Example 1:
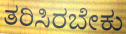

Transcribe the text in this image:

ತರಿಸಿರಬೇಕು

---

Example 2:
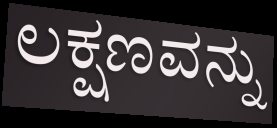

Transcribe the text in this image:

ಲಕ್ಷಣವನ್ನು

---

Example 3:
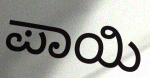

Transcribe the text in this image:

ಪಾಯಿ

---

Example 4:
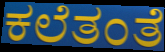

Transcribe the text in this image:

ಕಲೆತಂತೆ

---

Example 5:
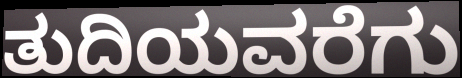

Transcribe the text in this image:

ತುದಿಯವರೆಗು